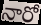
నారో